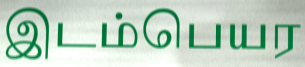
இடம்பெயர